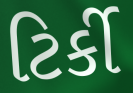
ટિર્કી